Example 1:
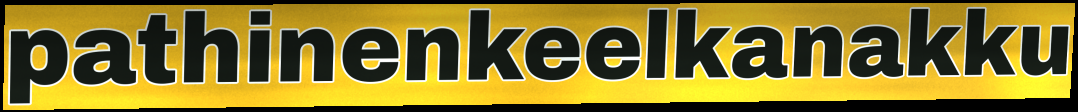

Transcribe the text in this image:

pathinenkeelkanakku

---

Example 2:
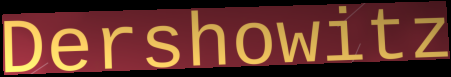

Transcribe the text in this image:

Dershowitz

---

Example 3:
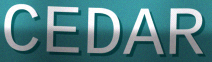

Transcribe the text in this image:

CEDAR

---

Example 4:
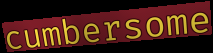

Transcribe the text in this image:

cumbersome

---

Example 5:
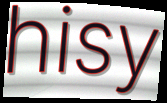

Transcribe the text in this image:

hisy